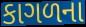
કાગળના